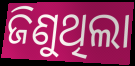
ଜିଣୁଥିଲା